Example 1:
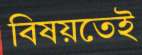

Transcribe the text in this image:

বিষয়তেই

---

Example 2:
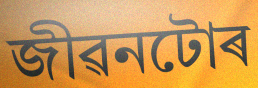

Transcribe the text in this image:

জীৱনটোৰ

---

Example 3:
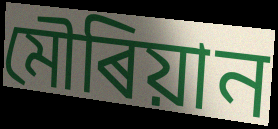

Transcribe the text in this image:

মৌৰিয়ান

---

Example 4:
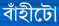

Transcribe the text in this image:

বাঁহীটো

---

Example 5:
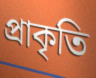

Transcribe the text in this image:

প্ৰাকৃতি